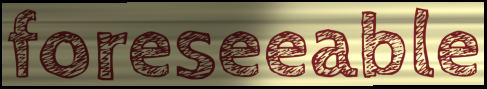
foreseeable